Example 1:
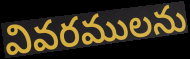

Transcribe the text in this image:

వివరములను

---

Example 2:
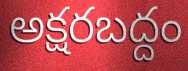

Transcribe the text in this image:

అక్షరబద్దం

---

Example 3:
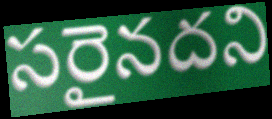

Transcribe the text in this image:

సరైనదని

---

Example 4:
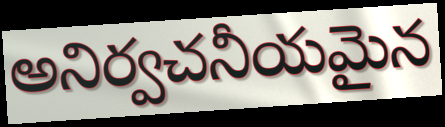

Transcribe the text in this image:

అనిర్వచనీయమైన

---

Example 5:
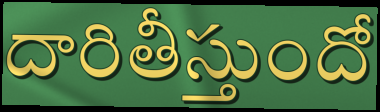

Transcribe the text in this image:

దారితీస్తుందో